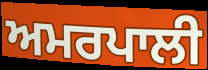
ਅਮਰਪਾਲੀ